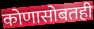
कोणासोबतही